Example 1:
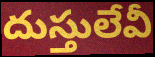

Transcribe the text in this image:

దుస్తులేవీ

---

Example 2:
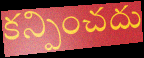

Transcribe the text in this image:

కన్పించదు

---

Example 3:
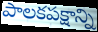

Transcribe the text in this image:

పాలకపక్షాన్ని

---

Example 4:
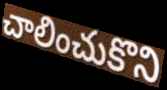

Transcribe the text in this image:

చాలించుకొని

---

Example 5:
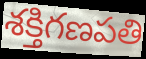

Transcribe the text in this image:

శక్తిగణపతి